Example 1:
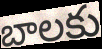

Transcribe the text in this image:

బాలకు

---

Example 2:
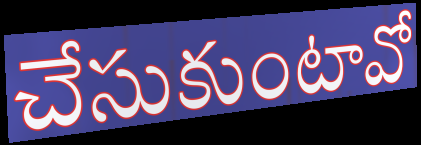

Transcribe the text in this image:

చేసుకుంటావో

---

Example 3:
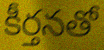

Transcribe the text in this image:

కీర్తనతో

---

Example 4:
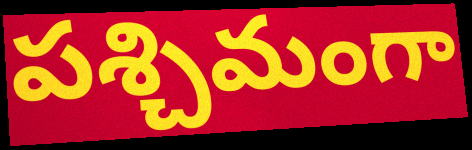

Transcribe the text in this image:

పశ్చిమంగా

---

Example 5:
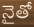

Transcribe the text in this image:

నైతో